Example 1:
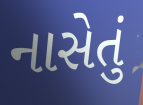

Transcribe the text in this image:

નાસેતું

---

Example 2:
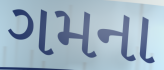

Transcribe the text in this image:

ગમના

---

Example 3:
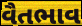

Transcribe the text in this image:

વૈતભાવ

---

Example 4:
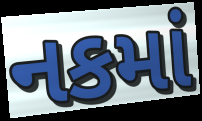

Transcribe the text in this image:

નકમાં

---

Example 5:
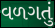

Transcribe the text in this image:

વળગતું